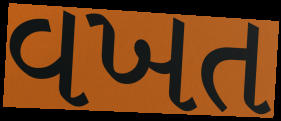
વખત